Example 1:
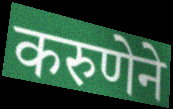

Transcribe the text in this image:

करुणेने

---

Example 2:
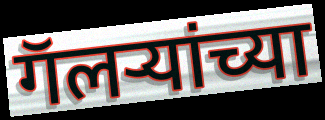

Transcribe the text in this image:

गॅलर्‍यांच्या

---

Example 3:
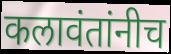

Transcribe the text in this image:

कलावंतांनीच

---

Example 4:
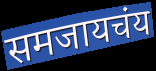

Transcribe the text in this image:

समजायचंय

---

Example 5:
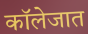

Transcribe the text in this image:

कॉलेजात